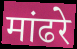
मांढरे